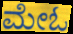
ಮೇಓ